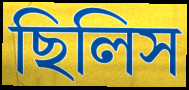
ছিলিস